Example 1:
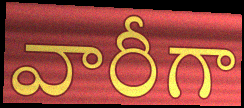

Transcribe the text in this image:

వారీగా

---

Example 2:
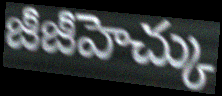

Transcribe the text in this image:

జీజీహెచ్కు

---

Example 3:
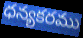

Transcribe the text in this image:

ధన్యకరము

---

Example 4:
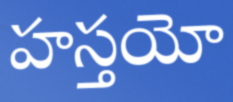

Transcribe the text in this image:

హస్తయో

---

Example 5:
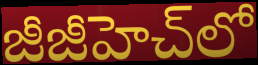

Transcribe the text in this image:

జీజీహెచ్‌లో